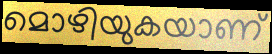
മൊഴിയുകയാണ്